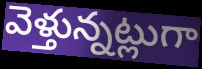
వెళ్తున్నట్లుగా